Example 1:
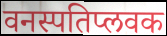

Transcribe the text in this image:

वनस्पतिप्लवक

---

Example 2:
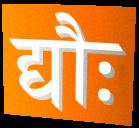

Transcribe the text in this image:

द्यौः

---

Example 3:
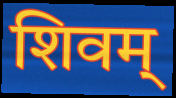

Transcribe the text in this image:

शिवम्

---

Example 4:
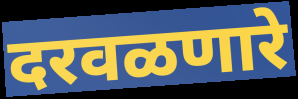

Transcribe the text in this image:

दरवळणारे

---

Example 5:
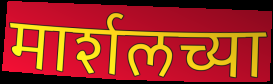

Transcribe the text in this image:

मार्शलच्या